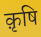
क़ृषि